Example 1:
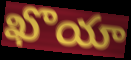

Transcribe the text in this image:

ఖొయా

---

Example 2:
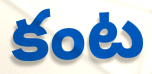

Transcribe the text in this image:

కంట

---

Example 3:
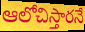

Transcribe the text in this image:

ఆలోచిస్తారనే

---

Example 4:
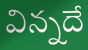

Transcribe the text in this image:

విన్నదే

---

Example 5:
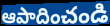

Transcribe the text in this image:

ఆపాదించండి